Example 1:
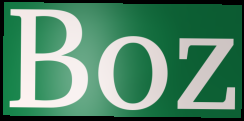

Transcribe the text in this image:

Boz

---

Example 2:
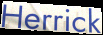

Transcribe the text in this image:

Herrick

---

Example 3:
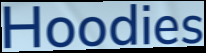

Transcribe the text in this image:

Hoodies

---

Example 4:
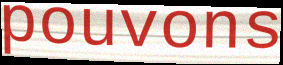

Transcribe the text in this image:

pouvons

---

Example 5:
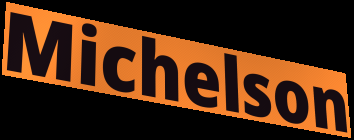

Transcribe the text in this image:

Michelson